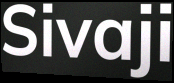
Sivaji